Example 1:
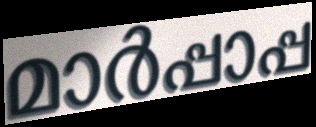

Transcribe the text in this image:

മാർപ്പാപ്പ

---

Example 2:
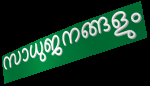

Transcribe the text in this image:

സാധുജനങ്ങളും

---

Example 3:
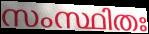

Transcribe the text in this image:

സംസ്ഥിതഃ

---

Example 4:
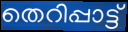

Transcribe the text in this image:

തെറിപ്പാട്ട്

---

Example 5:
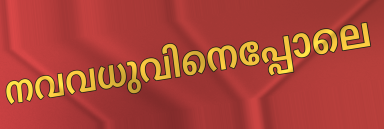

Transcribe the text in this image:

നവവധുവിനെപ്പോലെ